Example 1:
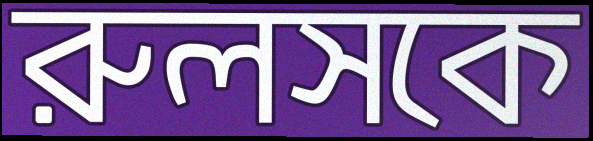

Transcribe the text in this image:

রুলসকে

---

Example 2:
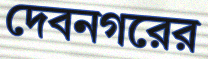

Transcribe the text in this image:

দেবনগরের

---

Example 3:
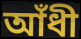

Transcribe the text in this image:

আঁধী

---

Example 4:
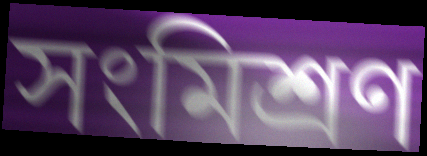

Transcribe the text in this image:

সংমিশ্রণ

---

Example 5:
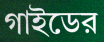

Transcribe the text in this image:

গাইডের